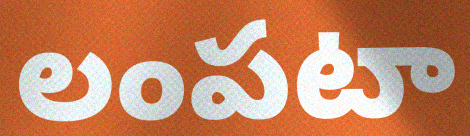
లంపటా